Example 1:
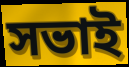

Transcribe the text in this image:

সভাই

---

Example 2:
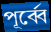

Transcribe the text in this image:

পূৰ্ব্বে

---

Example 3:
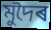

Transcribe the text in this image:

মুদৈৰ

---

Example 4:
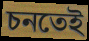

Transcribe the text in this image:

চনতেই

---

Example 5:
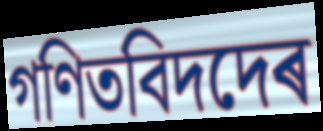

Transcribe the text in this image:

গণিতবিদদেৰ